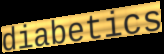
diabetics